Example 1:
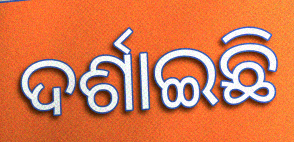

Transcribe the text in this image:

ଦର୍ଶାଇଛି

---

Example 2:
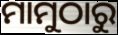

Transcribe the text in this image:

ମାମୁଠାରୁ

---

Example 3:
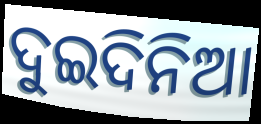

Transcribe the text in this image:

ଦୁଇଦିନିଆ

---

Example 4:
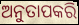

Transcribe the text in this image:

ଅନୁତାପକରି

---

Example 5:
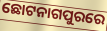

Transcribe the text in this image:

ଛୋଟନାଗପୁରରେ